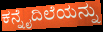
ಕನ್ನೈದಿಲೆಯನ್ನು